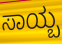
ಸಾಯ್ಬ